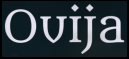
Ouija